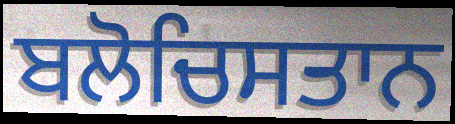
ਬਲੋਚਿਸਤਾਨ